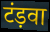
टंड़वा